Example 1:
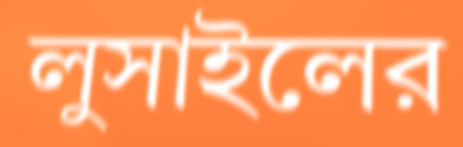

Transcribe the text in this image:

লুসাইলের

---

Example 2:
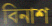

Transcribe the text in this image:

বিনাশ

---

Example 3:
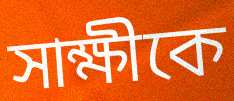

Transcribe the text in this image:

সাক্ষীকে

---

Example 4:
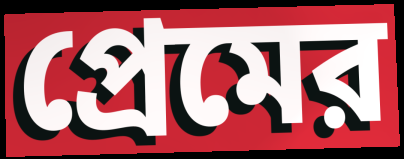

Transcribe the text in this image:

প্রেমের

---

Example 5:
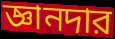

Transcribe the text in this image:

জ্ঞানদার